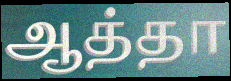
ஆத்தா